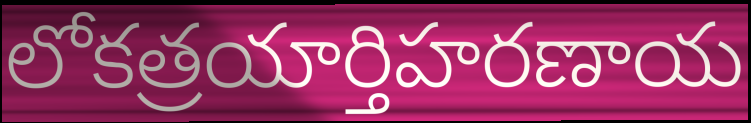
లోకత్రయార్తిహరణాయ